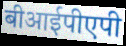
बीआईपीएपी